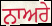
ਨਾਅਰੇ